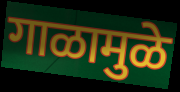
गाळामुळे